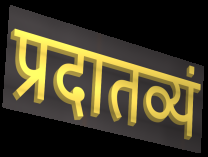
प्रदातव्यं